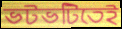
ভটভটিতেই